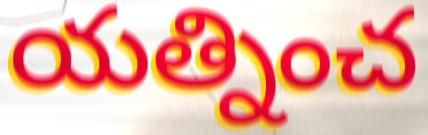
యత్నించ